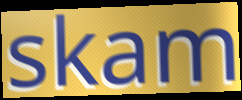
skam